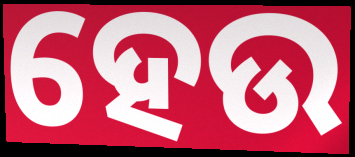
ହେଉ